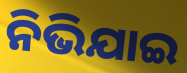
ନିଭିଯାଇ